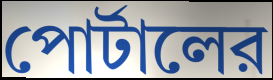
পোর্টালের